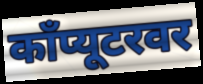
काँप्यूटरवर